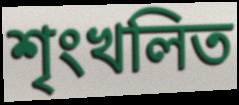
শৃংখলিত